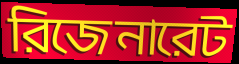
রিজেনারেট